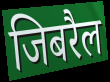
जिबरैल